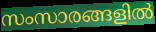
സംസാരങ്ങളിൽ